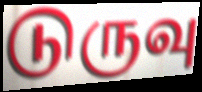
டுருவு